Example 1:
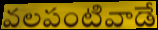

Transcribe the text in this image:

వలపంటివాడే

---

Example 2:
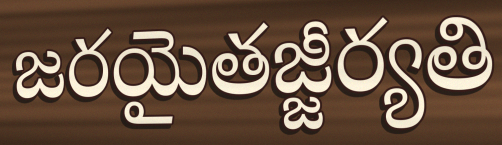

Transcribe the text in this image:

జరయైతజ్జీర్యతి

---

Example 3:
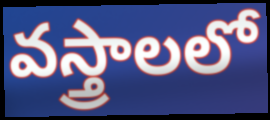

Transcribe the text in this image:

వస్త్రాలలో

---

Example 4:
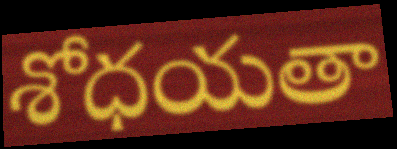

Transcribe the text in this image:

శోధయతా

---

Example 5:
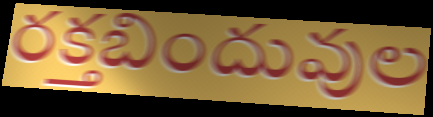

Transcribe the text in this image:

రక్తబిందువుల